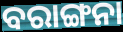
ବରାଙ୍ଗନା